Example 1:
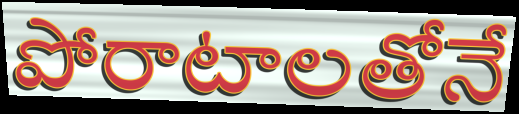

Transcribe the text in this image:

పోరాటాలతోనే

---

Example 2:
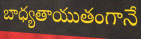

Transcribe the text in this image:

బాధ్యతాయుతంగానే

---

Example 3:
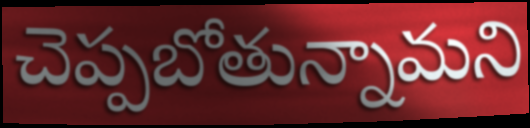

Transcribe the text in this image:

చెప్పబోతున్నామని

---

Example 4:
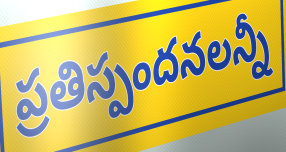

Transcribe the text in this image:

ప్రతిస్పందనలన్నీ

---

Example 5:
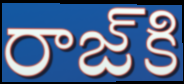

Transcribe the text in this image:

రాజ్‌కి